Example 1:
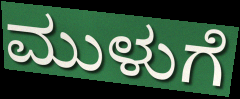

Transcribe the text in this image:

ಮುಳುಗೆ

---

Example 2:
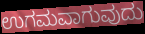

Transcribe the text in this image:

ಉಗಮವಾಗುವುದು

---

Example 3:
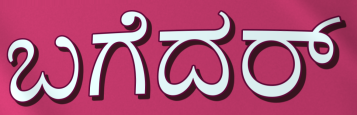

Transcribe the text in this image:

ಬಗೆದರ್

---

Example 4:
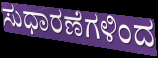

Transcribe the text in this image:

ಸುಧಾರಣೆಗಳಿಂದ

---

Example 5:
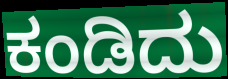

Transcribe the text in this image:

ಕಂಡಿದು